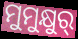
ମୁମୁକ୍ଷୁର୍